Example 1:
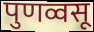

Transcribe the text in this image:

पुणव्वसू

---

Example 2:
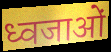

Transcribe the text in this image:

ध्वजाओं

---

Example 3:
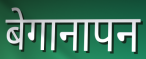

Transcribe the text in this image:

बेगानापन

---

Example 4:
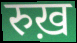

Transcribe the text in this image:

रुख़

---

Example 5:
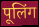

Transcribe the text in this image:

पूलिंग